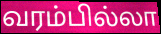
வரம்பில்லா